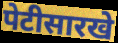
पेटीसारखे